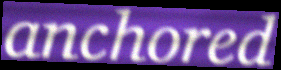
anchored